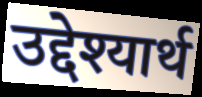
उद्देश्यार्थ